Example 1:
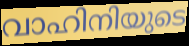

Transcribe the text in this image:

വാഹിനിയുടെ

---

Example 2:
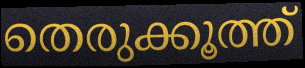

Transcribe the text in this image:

തെരുക്കൂത്ത്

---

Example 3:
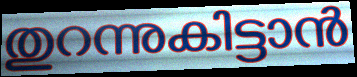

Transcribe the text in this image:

തുറന്നുകിട്ടാൻ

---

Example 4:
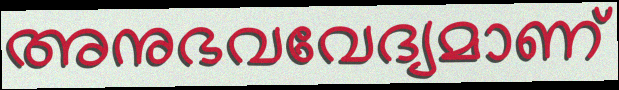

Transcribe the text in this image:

അനുഭവവേദ്യമാണ്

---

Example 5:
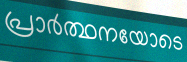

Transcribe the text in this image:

പ്രാർത്ഥനയോടെ